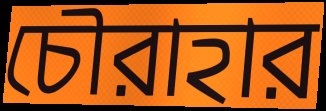
চৌরাহার